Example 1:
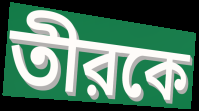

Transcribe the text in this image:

তীরকে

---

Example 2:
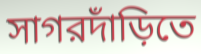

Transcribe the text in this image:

সাগরদাঁড়িতে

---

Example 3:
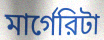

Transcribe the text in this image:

মার্গেরিটা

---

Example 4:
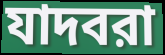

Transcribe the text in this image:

যাদবরা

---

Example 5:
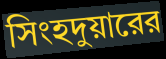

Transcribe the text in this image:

সিংহদুয়ারের